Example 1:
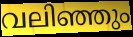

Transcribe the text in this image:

വലിഞ്ഞും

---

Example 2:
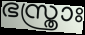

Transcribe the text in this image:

ഭസ്ത്രാഃ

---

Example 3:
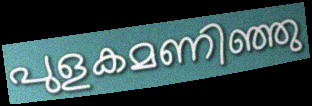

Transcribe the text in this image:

പുളകമണിഞ്ഞു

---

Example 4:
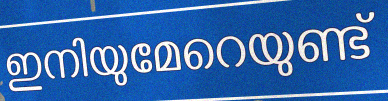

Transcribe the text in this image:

ഇനിയുമേറെയുണ്ട്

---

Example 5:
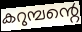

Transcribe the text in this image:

കറുമ്പന്റെ